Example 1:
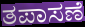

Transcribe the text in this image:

ತಪಾಸಣೆ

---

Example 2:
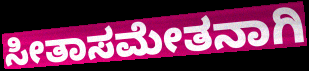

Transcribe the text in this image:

ಸೀತಾಸಮೇತನಾಗಿ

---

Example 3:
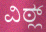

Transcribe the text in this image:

ವಿಠ್ಲ್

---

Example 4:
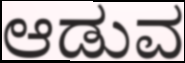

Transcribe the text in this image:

ಆಡುವ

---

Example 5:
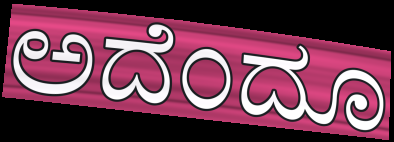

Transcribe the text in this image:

ಅದೆಂದೂ